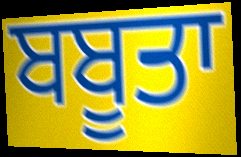
ਬਬੂਤਾ